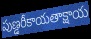
పుణ్డరీకాయతాక్షాయ